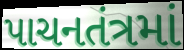
પાચનતંત્રમાં